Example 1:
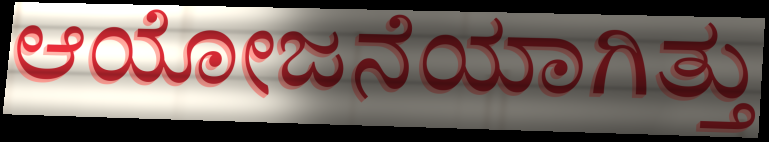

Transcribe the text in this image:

ಆಯೋಜನೆಯಾಗಿತ್ತು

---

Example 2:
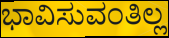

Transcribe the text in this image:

ಭಾವಿಸುವಂತಿಲ್ಲ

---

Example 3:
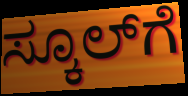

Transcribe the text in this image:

ಸ್ಕೂಲ್‌ಗೆ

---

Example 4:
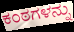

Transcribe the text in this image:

ಕಂಠಗಳನ್ನು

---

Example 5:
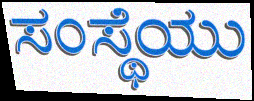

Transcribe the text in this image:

ಸಂಸ್ಥೆಯು